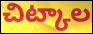
చిట్కాల